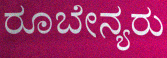
ರೂಬೇನ್ಯರು